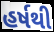
હર્ષથી